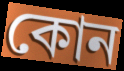
কোন